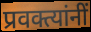
प्रवक्त्यांनीं